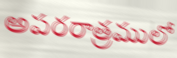
అపరరాత్రములో